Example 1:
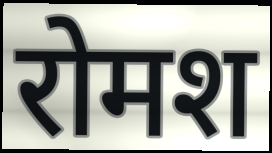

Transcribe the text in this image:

रोमश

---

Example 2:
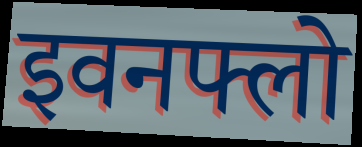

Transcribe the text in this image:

इवनफ्लो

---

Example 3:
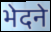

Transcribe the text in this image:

भेदने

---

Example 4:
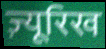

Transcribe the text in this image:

ज़्यूरिख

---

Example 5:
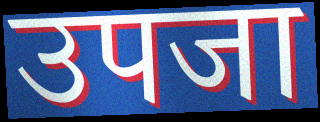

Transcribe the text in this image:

उपजा